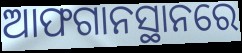
ଆଫଗାନସ୍ଥାନରେ